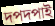
দপদপাই